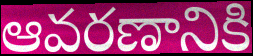
ఆవరణానికి